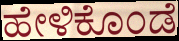
ಹೇಳಿಕೊಂಡೆ